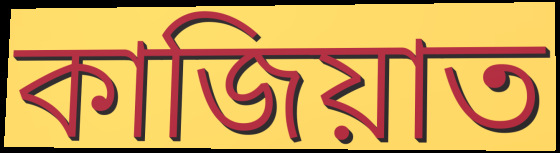
কাজিয়াত